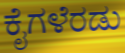
ಕೈಗಳೆರಡು